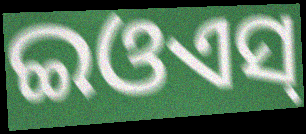
ଇଓଏସ୍